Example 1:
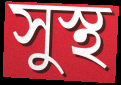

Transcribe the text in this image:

সুস্থ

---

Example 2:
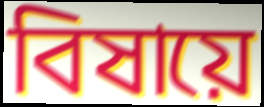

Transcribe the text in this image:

বিষায়ে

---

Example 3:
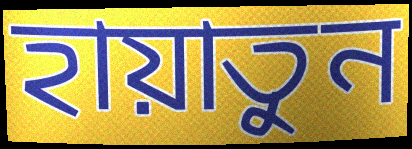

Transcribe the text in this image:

হায়াতুন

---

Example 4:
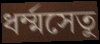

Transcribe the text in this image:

ধর্ম্মসেতু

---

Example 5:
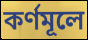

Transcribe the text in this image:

কর্ণমূলে